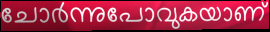
ചോർന്നുപോവുകയാണ്